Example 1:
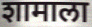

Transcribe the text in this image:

शामाला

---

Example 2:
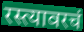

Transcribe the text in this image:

रस्त्यावरचं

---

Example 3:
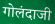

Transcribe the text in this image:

गोलंदाजी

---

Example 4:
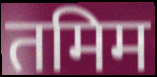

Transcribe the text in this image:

तमिम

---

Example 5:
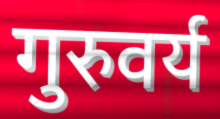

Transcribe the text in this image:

गुरुवर्य